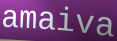
amaiva